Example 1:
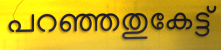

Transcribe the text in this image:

പറഞ്ഞതുകേട്ട്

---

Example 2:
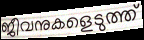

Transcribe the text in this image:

ജീവനുകളെടുത്ത്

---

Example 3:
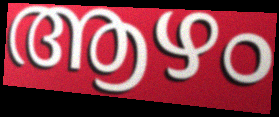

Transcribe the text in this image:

ആഴം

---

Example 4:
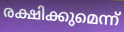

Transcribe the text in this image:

രക്ഷിക്കുമെന്ന്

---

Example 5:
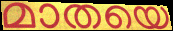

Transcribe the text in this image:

മാതയെ